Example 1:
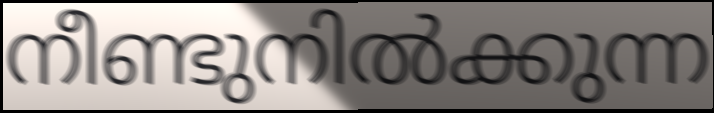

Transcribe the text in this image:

നീണ്ടുനിൽക്കുന്ന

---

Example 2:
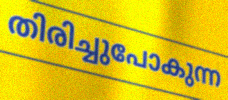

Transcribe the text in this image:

തിരിച്ചുപോകുന്ന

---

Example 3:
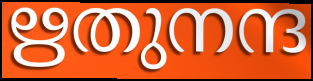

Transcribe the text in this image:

ഋതുനന്ദ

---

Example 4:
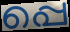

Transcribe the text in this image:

പ്പെ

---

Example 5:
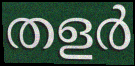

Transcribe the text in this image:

തളർ